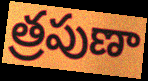
త్రపుణా